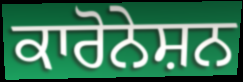
ਕਾਰੋਨੇਸ਼ਨ